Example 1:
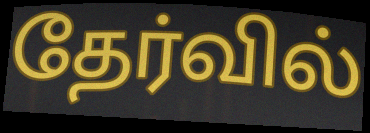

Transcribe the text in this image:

தேர்வில்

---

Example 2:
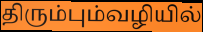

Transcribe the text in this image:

திரும்பும்வழியில்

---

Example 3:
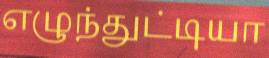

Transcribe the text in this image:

எழுந்துட்டியா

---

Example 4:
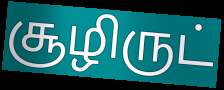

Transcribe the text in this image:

சூழிருட்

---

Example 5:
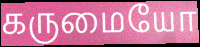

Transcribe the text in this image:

கருமையோ